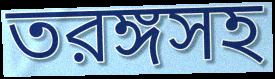
তরঙ্গসহ